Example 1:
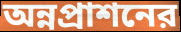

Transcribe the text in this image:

অন্নপ্রাশনের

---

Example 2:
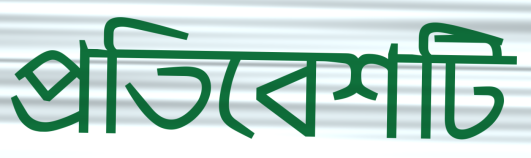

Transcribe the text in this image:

প্রতিবেশটি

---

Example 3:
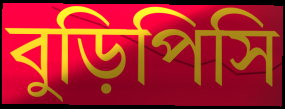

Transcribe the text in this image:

বুড়িপিসি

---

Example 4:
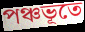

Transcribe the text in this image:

পঞ্চভূতে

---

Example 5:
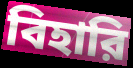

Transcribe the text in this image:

বিহারি